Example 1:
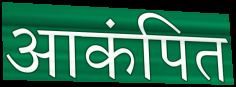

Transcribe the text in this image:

आकंपित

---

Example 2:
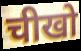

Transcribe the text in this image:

चीखो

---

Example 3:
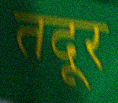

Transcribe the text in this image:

तदूर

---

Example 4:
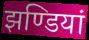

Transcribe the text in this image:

झण्डियां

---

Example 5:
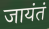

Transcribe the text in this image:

जायंतं